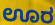
ಊರ